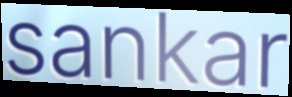
sankar